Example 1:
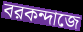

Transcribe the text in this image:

বরকন্দাজে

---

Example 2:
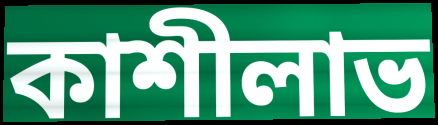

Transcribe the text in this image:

কাশীলাভ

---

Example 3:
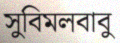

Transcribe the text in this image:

সুবিমলবাবু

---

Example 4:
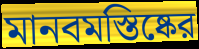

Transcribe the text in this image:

মানবমস্তিষ্কের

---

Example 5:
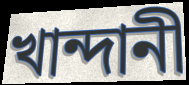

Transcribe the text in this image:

খান্দানী